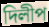
দিলীপ